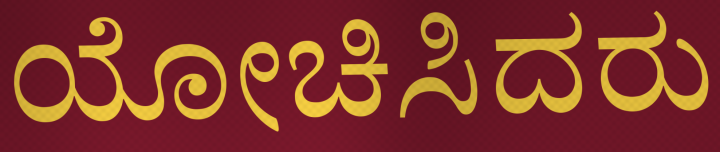
ಯೋಚಿಸಿದರು